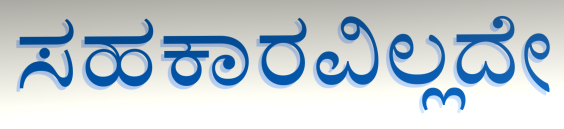
ಸಹಕಾರವಿಲ್ಲದೇ